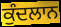
ਕੁੰਦਲਾਨ